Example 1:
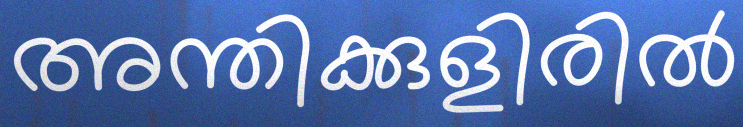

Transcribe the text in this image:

അന്തിക്കുളിരിൽ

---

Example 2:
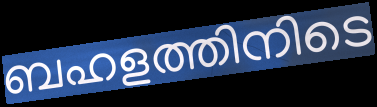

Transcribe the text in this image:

ബഹളത്തിനിടെ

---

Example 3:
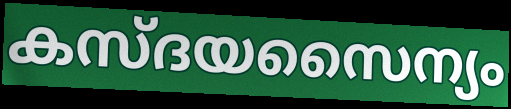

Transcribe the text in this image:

കസ്ദയസൈന്യം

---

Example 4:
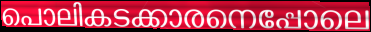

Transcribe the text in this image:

പൊലികടക്കാരനെപ്പോലെ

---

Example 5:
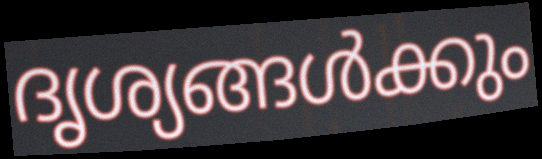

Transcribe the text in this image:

ദൃശ്യങ്ങൾക്കും